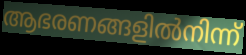
ആഭരണങ്ങളിൽനിന്ന്